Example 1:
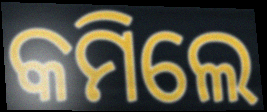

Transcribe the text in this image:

କମିଲେ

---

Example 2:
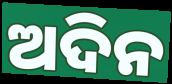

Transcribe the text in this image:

ଅଦିନ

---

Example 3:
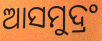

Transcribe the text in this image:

ଆସମୁଦ୍ରଂ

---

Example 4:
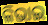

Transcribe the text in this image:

ଳିଭାଇ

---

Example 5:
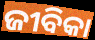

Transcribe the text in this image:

ଜୀବିକା